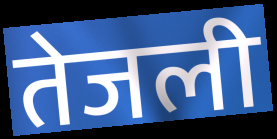
तेजली